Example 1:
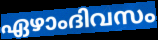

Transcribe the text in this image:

ഏഴാംദിവസം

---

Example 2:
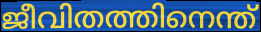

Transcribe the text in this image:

ജീവിതത്തിനെന്ത്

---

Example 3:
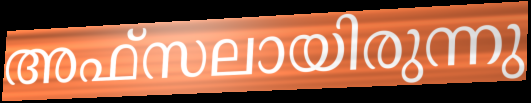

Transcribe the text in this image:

അഫ്സലായിരുന്നു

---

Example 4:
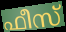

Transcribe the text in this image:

ഫീസ്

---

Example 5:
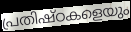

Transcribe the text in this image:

പ്രതിഷ്ഠകളെയും